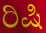
ರಿಷಿ